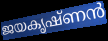
ജയകൃഷ്ണൻ